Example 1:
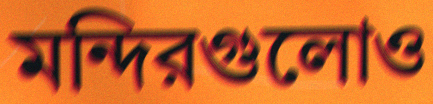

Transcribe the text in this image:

মন্দিরগুলোও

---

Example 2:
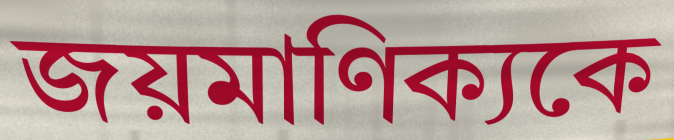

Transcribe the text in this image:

জয়মাণিক্যকে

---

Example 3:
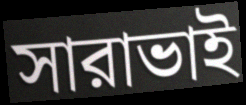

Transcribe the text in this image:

সারাভাই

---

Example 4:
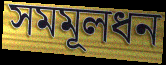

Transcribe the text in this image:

সমমূলধন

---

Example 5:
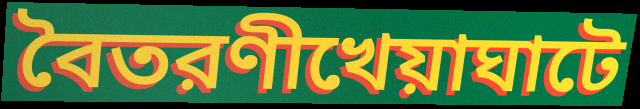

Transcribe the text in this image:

বৈতরণীখেয়াঘাটে